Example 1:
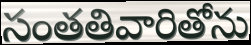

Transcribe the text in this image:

సంతతివారితోను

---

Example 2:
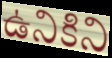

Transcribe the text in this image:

ఉనికిని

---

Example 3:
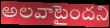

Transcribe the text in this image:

అలవాటైందని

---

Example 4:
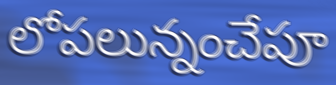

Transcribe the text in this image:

లోపలున్నంచేపూ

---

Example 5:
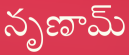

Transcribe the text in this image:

నృణామ్